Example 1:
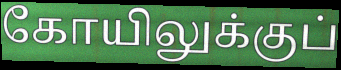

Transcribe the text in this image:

கோயிலுக்குப்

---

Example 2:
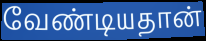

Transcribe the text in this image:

வேண்டியதான்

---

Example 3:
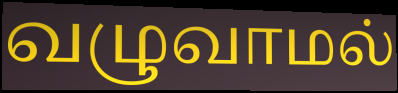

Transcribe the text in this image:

வழுவாமல்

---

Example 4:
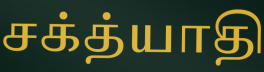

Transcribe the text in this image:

சக்த்யாதி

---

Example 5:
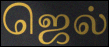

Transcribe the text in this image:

ஜெல்